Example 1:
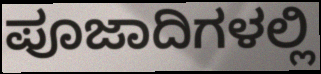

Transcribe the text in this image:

ಪೂಜಾದಿಗಳಲ್ಲಿ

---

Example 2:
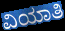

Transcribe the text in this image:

ವಿಯಾತಿ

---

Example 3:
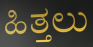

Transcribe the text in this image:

ಹಿತ್ತಲು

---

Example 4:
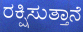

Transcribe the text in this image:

ರಕ್ಷಿಸುತ್ತಾನೆ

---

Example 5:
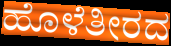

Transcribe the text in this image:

ಹೊಳೆತೀರದ